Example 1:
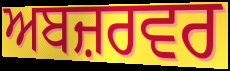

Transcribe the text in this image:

ਅਬਜ਼ਰਵਰ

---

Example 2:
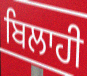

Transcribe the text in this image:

ਬਿਲਾਹੀ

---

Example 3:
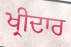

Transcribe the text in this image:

ਖ੍ਰੀਦਾਰ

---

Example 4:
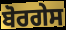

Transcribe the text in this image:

ਬੋਰਗੇਸ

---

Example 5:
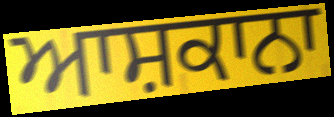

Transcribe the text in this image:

ਆਸ਼ਕਾਨਾ